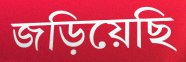
জড়িয়েছি